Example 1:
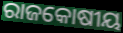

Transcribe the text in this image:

ରାଜକୋଷୀୟ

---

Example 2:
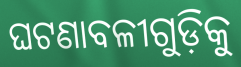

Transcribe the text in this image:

ଘଟଣାବଳୀଗୁଡ଼ିକୁ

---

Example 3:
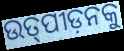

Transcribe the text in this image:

ଉତ୍‌ପୀଡ଼ନକୁ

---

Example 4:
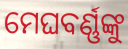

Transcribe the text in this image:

ମେଘବର୍ଣ୍ଣଙ୍କୁ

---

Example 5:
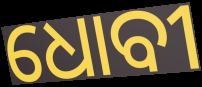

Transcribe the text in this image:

ଧୋବୀ